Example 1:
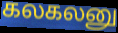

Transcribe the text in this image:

கலகலனு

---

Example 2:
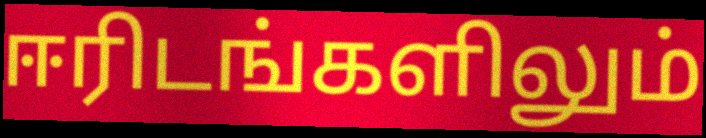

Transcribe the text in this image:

ஈரிடங்களிலும்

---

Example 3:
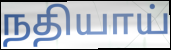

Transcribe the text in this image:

நதியாய்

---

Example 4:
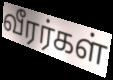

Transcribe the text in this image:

வீரர்கள்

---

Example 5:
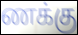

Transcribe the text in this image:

ணக்கு